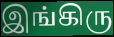
இங்கிரு